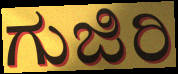
ಗುಜಿರಿ